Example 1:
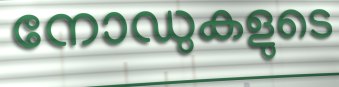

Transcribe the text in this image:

നോഡുകളുടെ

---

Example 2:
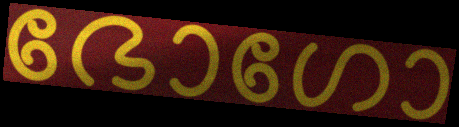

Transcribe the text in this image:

ഭോഗോ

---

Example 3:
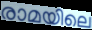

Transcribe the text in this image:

രാമയിലെ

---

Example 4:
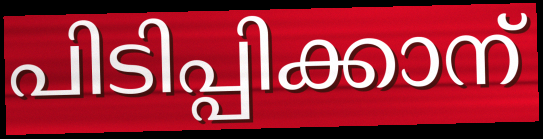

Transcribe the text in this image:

പിടിപ്പിക്കാന്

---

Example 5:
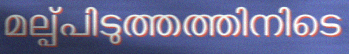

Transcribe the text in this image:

മല്പ്പിടുത്തത്തിനിടെ